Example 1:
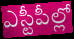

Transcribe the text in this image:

ఎస్టీపీల్లో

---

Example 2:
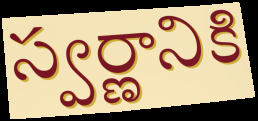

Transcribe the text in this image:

స్వర్ణానికి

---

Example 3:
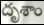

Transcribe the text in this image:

దృశాం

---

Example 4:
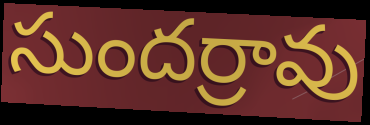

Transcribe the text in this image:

సుందర్రావు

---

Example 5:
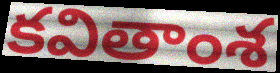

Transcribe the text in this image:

కవితాంశ